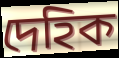
দেহিক